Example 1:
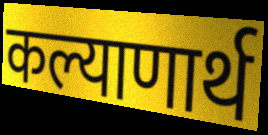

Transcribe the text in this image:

कल्याणार्थ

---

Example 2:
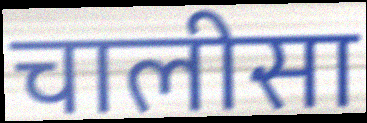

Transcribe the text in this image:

चालीसा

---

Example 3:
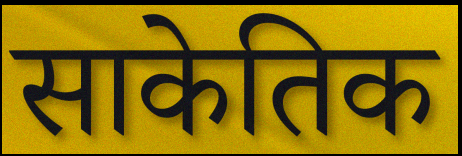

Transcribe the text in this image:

साकेतिक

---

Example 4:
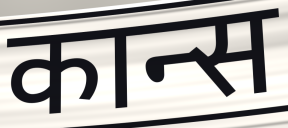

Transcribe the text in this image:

कान्स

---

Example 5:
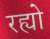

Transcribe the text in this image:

रह्यो